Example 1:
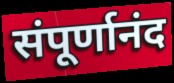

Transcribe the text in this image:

संपूर्णानंद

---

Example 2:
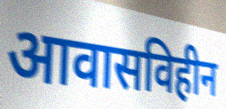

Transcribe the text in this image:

आवासविहीन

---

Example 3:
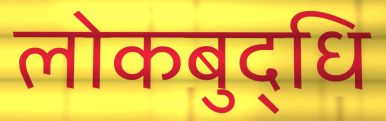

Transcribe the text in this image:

लोकबुद्धि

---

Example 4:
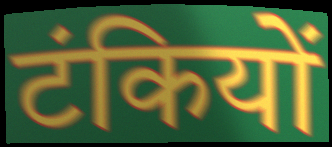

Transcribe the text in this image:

टंकियों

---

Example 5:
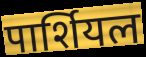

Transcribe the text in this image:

पार्शियल